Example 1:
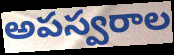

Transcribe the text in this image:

అపస్వరాల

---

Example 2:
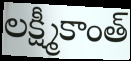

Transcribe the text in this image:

లక్ష్మీకాంత్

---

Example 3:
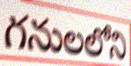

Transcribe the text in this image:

గనులలోని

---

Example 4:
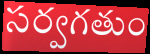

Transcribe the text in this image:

సర్వగతుం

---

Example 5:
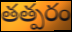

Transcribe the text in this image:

తత్పరం